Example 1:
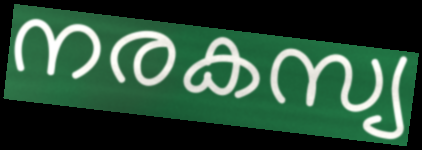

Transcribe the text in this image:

നരകസ്യ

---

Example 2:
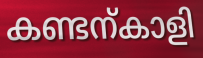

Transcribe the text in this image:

കണ്ടന്കാളി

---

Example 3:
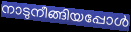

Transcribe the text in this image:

നാടുനീങ്ങിയപ്പോൾ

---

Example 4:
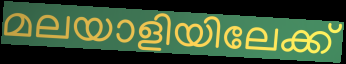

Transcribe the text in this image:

മലയാളിയിലേക്ക്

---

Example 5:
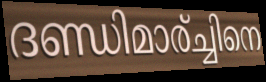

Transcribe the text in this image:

ദണ്ഡിമാര്ച്ചിനെ